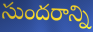
సుందరాన్ని